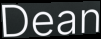
Dean